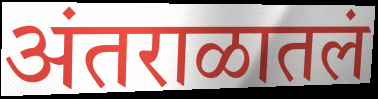
अंतराळातलं